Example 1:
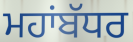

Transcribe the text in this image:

ਮਹਾਂਬੱਧਰ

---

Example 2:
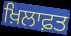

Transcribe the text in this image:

ਖ਼ਿਲਾਫ਼ਤ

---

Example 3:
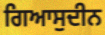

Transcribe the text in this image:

ਗਿਆਸੁਦੀਨ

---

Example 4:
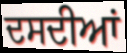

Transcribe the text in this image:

ਦਸਦੀਆਂ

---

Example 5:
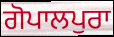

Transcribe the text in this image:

ਗੋਪਾਲਪੁਰਾ